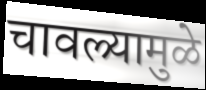
चावल्यामुळे